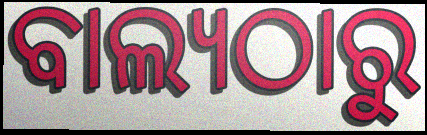
ବାଲ୍ୟଠାରୁ